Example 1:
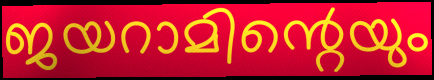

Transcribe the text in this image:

ജയറാമിന്റെയും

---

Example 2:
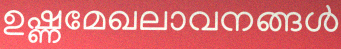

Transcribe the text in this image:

ഉഷ്ണമേഖലാവനങ്ങൾ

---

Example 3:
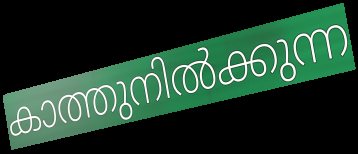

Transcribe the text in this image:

കാത്തുനിൽക്കുന്ന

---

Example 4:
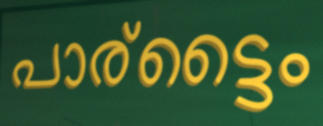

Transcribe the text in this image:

പാര്ട്ടൈം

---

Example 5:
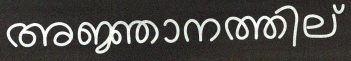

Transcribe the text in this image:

അജ്ഞാനത്തില്